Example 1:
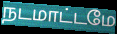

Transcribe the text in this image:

நடமாட்டமே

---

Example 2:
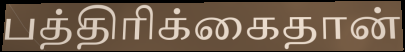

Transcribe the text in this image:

பத்திரிக்கைதான்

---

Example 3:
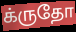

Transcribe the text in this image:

க்ருதோ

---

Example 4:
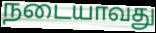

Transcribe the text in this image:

நடையாவது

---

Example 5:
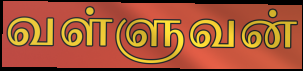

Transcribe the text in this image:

வள்ளுவன்